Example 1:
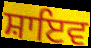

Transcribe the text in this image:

ਸ਼ਾਇਵ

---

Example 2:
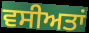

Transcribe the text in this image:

ਵਸੀਅਤਾਂ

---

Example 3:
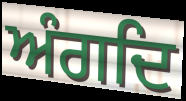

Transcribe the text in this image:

ਅੰਗਦਿ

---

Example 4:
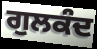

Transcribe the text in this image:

ਗੁਲਕੰਦ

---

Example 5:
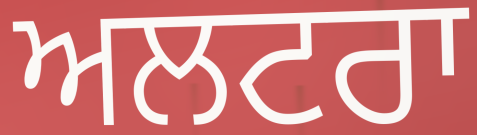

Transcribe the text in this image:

ਅਲਟਰਾ